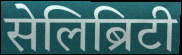
सेलिब्रिटी